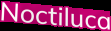
Noctiluca